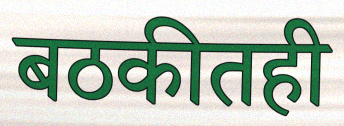
बठकीतही